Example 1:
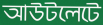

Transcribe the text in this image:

আউটলেটে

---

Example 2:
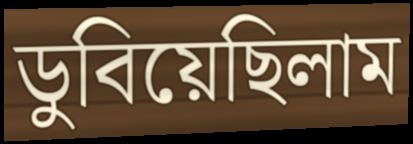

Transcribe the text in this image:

ডুবিয়েছিলাম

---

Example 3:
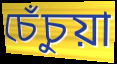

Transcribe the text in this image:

চেঁচুয়া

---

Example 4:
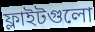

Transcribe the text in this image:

ফ্লাইটগুলো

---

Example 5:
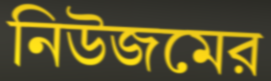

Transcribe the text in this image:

নিউজমের